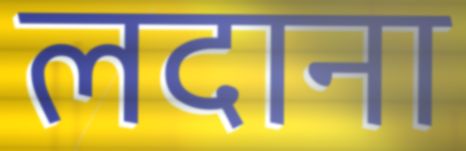
लदाना